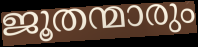
ജൂതന്മാരും